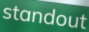
standout